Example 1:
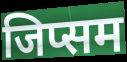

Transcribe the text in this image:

जिप्सम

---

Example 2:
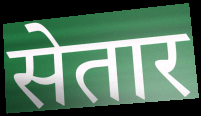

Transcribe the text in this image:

सेतार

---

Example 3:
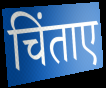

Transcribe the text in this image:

चिंताए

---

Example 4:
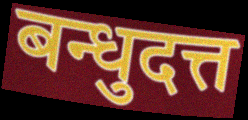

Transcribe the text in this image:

बन्धुदत्त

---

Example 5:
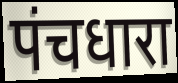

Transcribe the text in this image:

पंचधारा